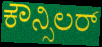
ಕೌನ್ಸಿಲರ್